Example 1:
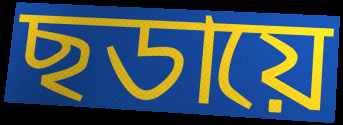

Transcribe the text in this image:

ছডায়ে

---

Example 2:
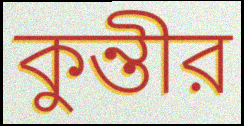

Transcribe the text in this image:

কুন্তীর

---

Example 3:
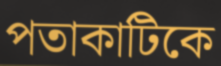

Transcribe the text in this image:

পতাকাটিকে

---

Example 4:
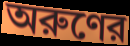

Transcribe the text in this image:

অরুণের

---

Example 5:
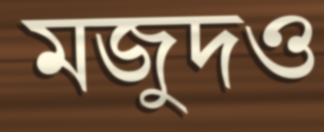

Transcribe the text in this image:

মজুদও